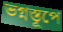
ভগ্নস্তূপে